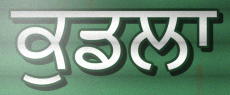
ਕੁਡਲਾ